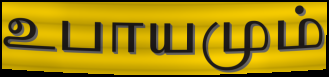
உபாயமும்